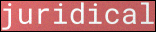
juridical